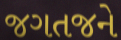
જગતજને